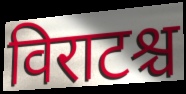
विराटश्च